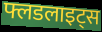
फ्लडलाइट्स